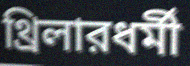
থ্রিলারধর্মী